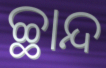
ଚ୍ଛାନ୍ଦ